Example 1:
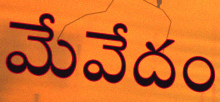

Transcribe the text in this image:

మేవేదం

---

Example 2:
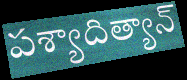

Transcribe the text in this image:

పశ్యాదిత్యాన్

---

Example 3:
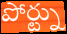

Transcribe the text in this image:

పోర్ట్ను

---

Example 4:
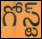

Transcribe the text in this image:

గోస్ట్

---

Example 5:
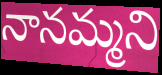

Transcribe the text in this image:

నానమ్మని